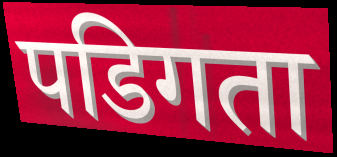
पडिगता